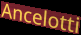
Ancelotti